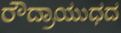
ರೌದ್ರಾಯುಧದ